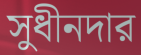
সুধীনদার